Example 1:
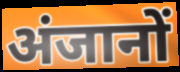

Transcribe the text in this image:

अंजानों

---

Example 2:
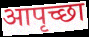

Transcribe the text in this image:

आपृच्छा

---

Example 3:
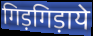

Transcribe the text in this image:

गिड़गिड़ाये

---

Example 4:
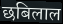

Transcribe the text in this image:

छबिलाल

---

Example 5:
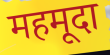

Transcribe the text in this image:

महमूदा